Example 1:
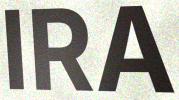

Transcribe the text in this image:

IRA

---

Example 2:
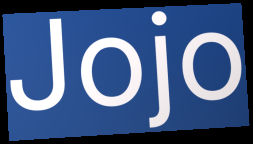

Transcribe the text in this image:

Jojo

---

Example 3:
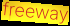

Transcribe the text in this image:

freeway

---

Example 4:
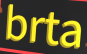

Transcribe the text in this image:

brta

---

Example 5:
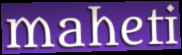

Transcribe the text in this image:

maheti